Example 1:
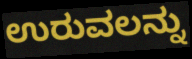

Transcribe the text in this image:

ಉರುವಲನ್ನು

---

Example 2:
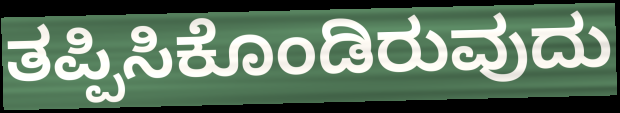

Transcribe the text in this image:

ತಪ್ಪಿಸಿಕೊಂಡಿರುವುದು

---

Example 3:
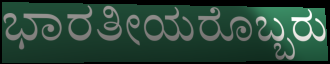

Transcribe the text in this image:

ಭಾರತೀಯರೊಬ್ಬರು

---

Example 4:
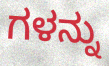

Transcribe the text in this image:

ಗಳನ್ನು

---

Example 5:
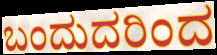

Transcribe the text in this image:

ಬಂದುದರಿಂದ